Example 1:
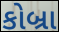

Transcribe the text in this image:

કોબ્રા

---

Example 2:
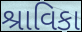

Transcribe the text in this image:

શ્રાવિકા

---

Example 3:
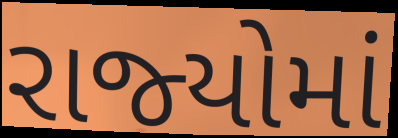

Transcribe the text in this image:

રાજ્‍યોમાં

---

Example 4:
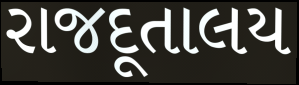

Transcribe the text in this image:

રાજદૂતાલય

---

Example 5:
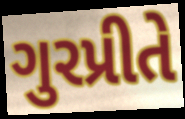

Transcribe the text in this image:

ગુરપ્રીતે